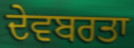
ਦੇਵਬਰਤਾ